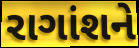
રાગાંશને